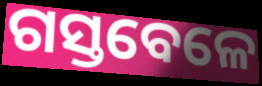
ଗସ୍ତବେଳେ